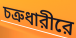
চত্রুধারীরে